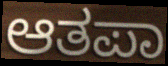
ಆತಪಾ